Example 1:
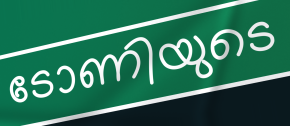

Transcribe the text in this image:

ടോണിയുടെ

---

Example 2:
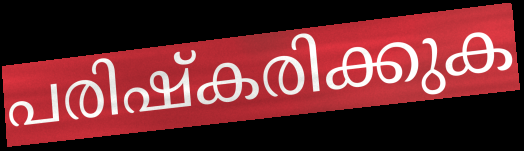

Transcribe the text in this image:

പരിഷ്കരിക്കുക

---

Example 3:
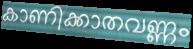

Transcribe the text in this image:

കാണിക്കാതവണ്ണം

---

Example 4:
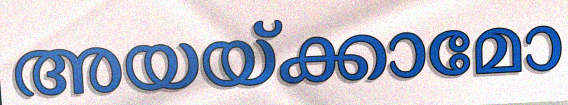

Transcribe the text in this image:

അയയ്ക്കാമോ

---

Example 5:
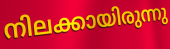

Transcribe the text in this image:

നിലക്കായിരുന്നു